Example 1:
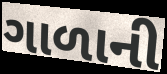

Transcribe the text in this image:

ગાળાની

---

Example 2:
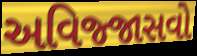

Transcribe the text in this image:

અવિજ્જાસવો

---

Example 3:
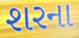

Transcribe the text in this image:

શરના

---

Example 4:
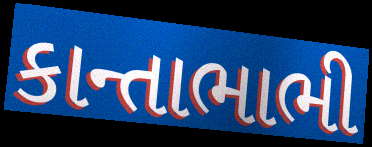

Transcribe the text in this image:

કાન્તાભાભી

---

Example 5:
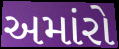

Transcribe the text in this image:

અમાંરો